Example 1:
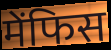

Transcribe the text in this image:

मेंफिस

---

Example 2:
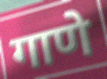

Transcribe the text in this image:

गाणे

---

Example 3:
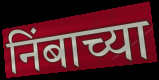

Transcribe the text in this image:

निंबाच्या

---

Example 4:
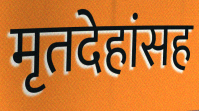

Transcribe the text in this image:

मृतदेहांसह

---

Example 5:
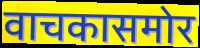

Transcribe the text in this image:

वाचकासमोर